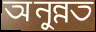
অনুন্নত